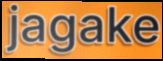
jagake